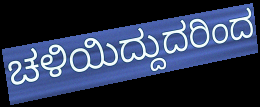
ಚಳಿಯಿದ್ದುದರಿಂದ